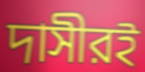
দাসীরই